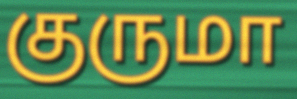
குருமா